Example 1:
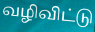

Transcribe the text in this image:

வழிவிட்டு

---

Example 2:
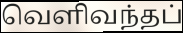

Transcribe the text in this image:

வெளிவந்தப்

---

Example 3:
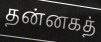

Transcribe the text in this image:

தன்னகத்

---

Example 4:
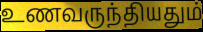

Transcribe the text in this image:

உணவருந்தியதும்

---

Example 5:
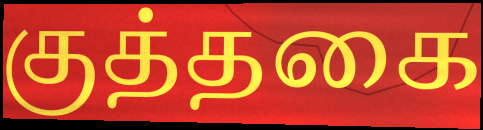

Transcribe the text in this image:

குத்தகை